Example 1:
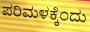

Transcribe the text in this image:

ಪರಿಮಳಕ್ಕೆಂದು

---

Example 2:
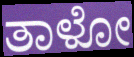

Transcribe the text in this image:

ತಾಳೋ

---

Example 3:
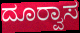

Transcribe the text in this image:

ದೂರ‍್ವಾಸ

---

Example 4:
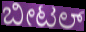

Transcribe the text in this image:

ಬೀಟಲ್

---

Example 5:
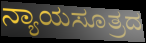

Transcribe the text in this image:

ನ್ಯಾಯಸೂತ್ರದ